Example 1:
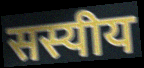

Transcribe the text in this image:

सस्यीय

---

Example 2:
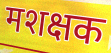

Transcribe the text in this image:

मशक्षक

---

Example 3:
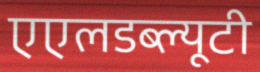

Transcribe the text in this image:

एएलडब्ल्यूटी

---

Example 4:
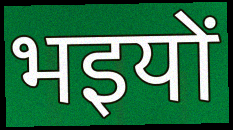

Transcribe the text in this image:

भइयों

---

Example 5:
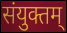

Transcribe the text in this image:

संयुक्तम्